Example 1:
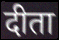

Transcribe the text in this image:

दीता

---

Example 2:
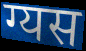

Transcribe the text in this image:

ग्यस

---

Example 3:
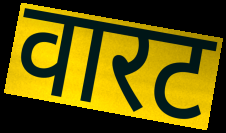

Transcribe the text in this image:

वारट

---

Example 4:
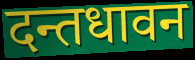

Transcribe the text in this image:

दन्तधावन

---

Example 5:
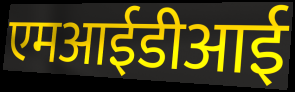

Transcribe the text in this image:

एमआईडीआई